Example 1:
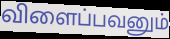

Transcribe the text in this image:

விளைப்பவனும்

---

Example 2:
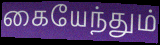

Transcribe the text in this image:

கையேந்தும்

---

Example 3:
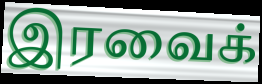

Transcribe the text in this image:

இரவைக்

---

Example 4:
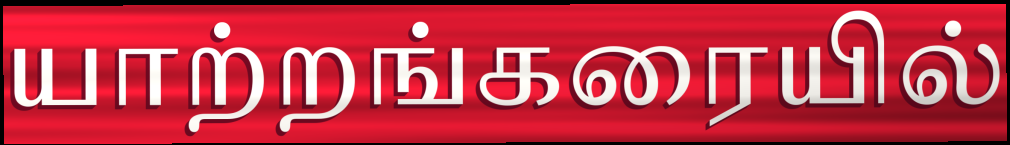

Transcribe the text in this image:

யாற்றங்கரையில்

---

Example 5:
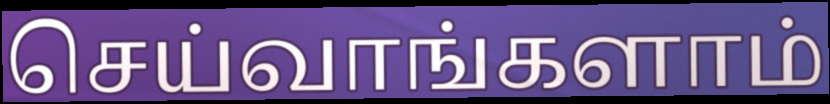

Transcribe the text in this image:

செய்வாங்களாம்